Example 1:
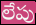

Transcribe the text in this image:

లేపు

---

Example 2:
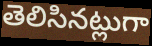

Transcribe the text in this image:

తెలిసినట్లుగా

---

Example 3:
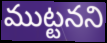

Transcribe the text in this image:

ముట్టనని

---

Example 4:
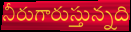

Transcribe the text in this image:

నీరుగారుస్తున్నది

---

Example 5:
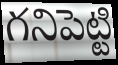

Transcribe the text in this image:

గనిపెట్టి